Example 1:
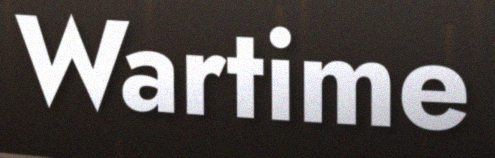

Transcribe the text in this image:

Wartime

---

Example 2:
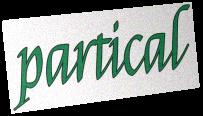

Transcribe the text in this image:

partical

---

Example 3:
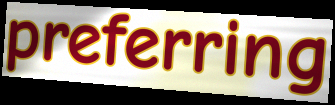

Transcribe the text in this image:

preferring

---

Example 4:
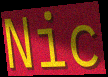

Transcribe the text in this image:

Nic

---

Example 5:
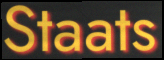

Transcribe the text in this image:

Staats